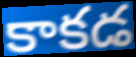
కాకడ